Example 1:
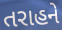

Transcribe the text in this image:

તરાહને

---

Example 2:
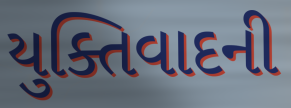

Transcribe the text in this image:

યુક્તિવાદની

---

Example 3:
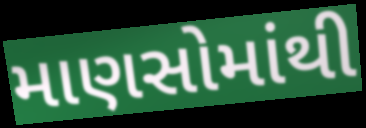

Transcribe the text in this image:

માણસોમાંથી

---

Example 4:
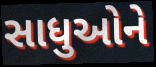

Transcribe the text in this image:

સાધુઓને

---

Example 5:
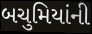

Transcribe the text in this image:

બચુમિયાંની